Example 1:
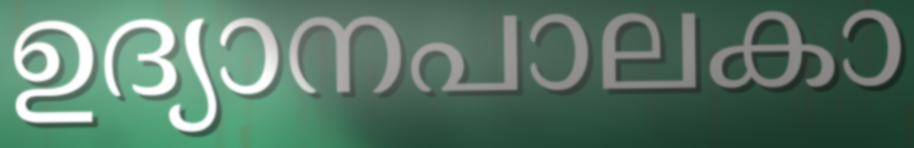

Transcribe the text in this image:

ഉദ്യാനപാലകാ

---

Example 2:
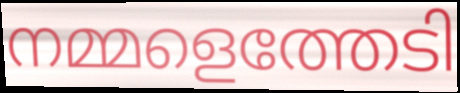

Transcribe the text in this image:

നമ്മളെത്തേടി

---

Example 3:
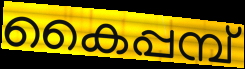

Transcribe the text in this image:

കൈപ്പമ്പ്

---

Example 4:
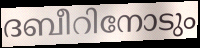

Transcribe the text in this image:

ദബീറിനോടും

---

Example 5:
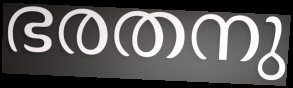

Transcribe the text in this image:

ഭരതനു